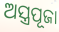
ଅସ୍ତ୍ରପୂଜା